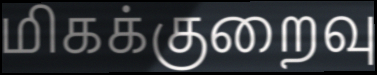
மிகக்குறைவு